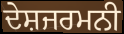
ਦੇਸ਼ਜਰਮਨੀ